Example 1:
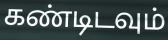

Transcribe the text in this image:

கண்டிடவும்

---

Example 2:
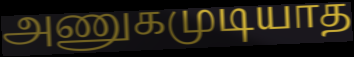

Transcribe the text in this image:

அணுகமுடியாத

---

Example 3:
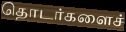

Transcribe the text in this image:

தொடர்களைச்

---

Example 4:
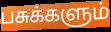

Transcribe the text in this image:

பசுக்களும்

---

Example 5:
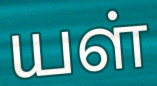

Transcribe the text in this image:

யள்